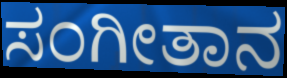
ಸಂಗೀತಾನ